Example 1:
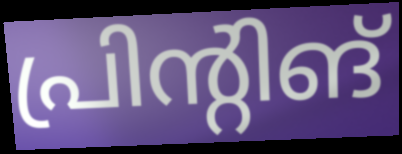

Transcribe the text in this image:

പ്രിന്റിങ്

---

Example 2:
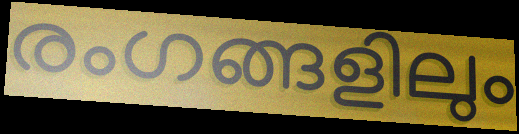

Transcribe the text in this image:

രംഗങ്ങളിലും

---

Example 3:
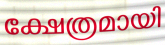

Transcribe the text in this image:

ക്ഷേത്രമായി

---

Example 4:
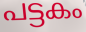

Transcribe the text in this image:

പട്ടകം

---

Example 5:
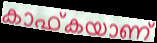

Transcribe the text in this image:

കാഫ്കയാണ്